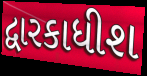
દ્વારકાધીશ